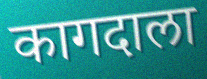
कागदाला